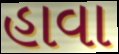
હાવા